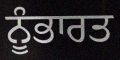
ਨੂੰਭਾਰਤ